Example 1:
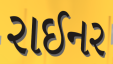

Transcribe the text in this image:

રાઈનર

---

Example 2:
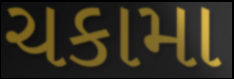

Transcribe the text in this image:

ચકામા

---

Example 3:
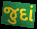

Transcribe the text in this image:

જુદાં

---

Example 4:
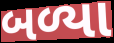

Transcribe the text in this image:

બળ્યા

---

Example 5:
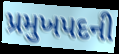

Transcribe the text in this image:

પ્રમુખપદની